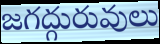
జగద్గురువులు